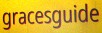
gracesguide